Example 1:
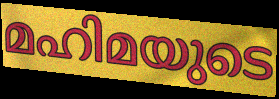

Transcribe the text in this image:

മഹിമയുടെ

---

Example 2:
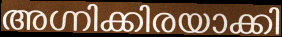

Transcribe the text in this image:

അഗ്നിക്കിരയാക്കി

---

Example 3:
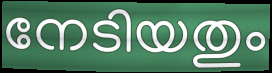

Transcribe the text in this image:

നേടിയതും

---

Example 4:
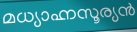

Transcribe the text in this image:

മധ്യാഹ്നസൂര്യൻ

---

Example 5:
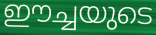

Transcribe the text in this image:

ഈച്ചയുടെ